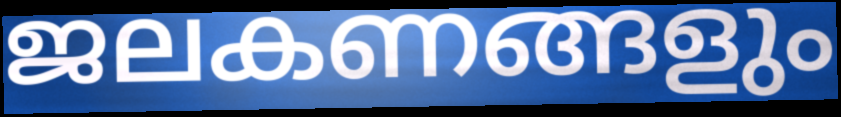
ജലകണങ്ങളും